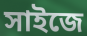
সাইজে